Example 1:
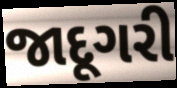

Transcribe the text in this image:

જાદૂગરી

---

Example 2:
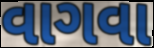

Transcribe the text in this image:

વાગવા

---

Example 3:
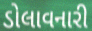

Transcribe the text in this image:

ડોલાવનારી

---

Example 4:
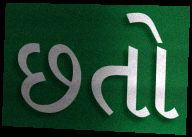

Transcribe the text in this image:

છતો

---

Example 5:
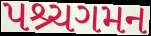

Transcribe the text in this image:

પશ્ર્ચગમન